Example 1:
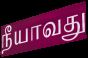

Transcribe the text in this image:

நீயாவது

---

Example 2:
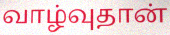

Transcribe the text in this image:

வாழ்வுதான்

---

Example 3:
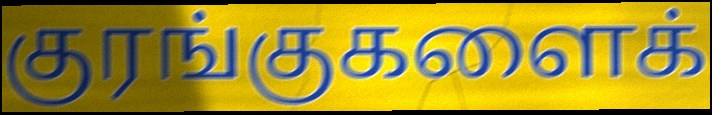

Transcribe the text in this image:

குரங்குகளைக்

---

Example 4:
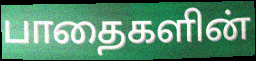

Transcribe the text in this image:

பாதைகளின்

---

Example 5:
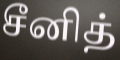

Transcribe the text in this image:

சீனித்